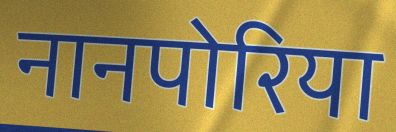
नानपोरिया